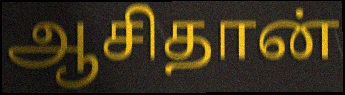
ஆசிதான்